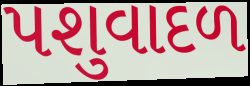
પશુવાદળ